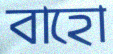
বাহো